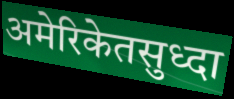
अमेरिकेतसुध्दा